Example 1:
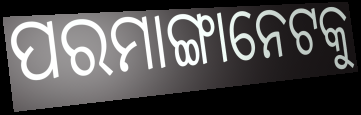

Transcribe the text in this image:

ପରମାଙ୍ଗାନେଟକୁ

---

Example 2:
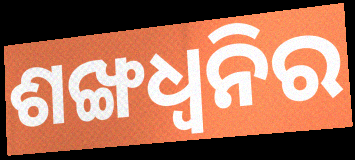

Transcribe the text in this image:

ଶଙ୍ଖଧ୍ବନିର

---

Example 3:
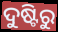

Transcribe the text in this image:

ଦୁଷ୍ଟିରୁ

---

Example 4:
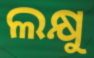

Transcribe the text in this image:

ଲକ୍ଷୁ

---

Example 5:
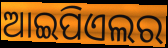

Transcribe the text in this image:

ଆଇପିଏଲର